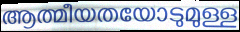
ആത്മീയതയോടുമുള്ള